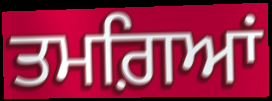
ਤਮਗ਼ਿਆਂ